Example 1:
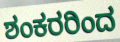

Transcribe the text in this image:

ಶಂಕರರಿಂದ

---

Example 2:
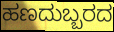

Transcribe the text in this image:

ಹಣದುಬ್ಬರದ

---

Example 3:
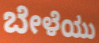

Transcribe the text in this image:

ಬೇಳೆಯು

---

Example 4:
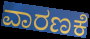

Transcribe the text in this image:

ವಾರಣಕೆ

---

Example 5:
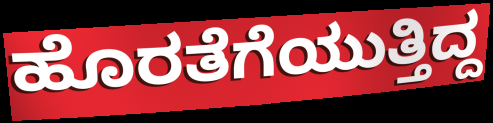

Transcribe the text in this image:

ಹೊರತೆಗೆಯುತ್ತಿದ್ದ